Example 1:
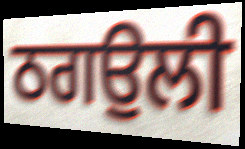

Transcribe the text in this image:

ਠਗਉਲੀ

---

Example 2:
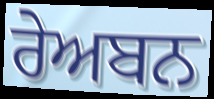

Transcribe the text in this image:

ਰੇਅਬਨ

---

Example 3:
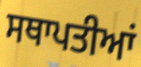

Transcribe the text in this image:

ਸਥਾਪਤੀਆਂ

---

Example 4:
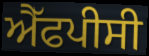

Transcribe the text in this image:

ਐੱਫਪੀਸੀ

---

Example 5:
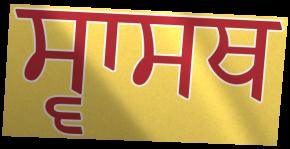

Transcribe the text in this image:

ਸ੍ਵਾਸਥ